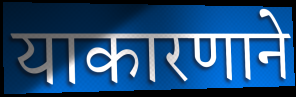
याकारणाने